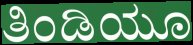
ತಿಂಡಿಯೂ